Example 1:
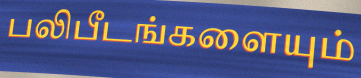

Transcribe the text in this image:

பலிபீடங்களையும்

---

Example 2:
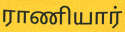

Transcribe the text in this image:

ராணியார்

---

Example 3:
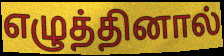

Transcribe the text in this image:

எழுத்தினால்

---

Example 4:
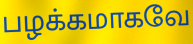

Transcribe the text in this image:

பழக்கமாகவே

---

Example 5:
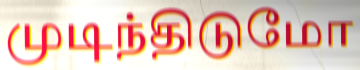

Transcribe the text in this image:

முடிந்திடுமோ